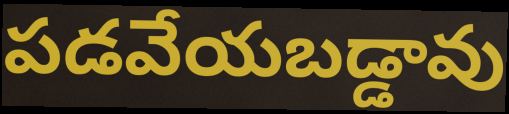
పడవేయబడ్డావు